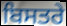
ਬਿਸਤਰੇ